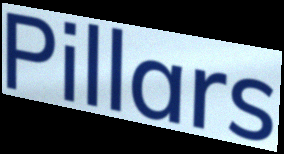
Pillars